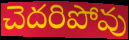
చెదరిపోవు